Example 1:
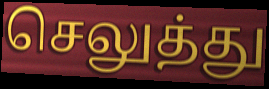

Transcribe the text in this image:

செலுத்து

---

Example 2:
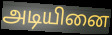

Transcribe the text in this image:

அடியினை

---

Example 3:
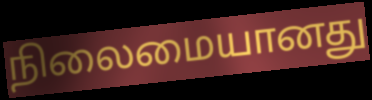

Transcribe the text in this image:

நிலைமையானது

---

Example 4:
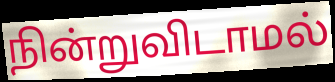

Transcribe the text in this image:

நின்றுவிடாமல்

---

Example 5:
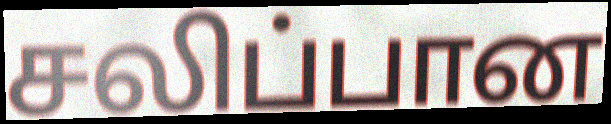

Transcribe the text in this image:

சலிப்பான